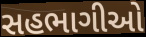
સહભાગીઓ